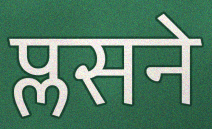
प्लसने